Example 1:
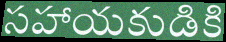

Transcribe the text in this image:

సహాయకుడికి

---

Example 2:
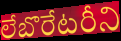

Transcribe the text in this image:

లేబొరేటరీని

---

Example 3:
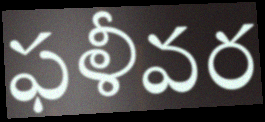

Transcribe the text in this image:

ఫళీవర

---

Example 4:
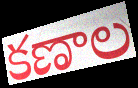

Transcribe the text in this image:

కణాల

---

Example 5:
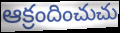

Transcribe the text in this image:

ఆక్రందించుచు